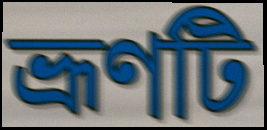
ভ্রূণটি